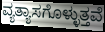
ವ್ಯತ್ಯಾಸಗೊಳ್ಳುತ್ತವೆ